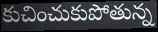
కుచించుకుపోతున్న